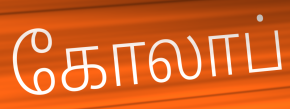
கோலாப்